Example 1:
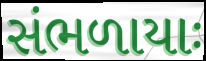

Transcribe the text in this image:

સંભળાયાઃ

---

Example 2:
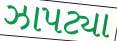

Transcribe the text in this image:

ઝાપટ્યા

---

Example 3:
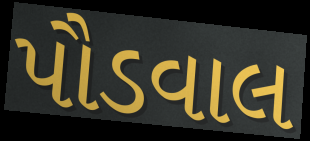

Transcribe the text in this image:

પૌડવાલ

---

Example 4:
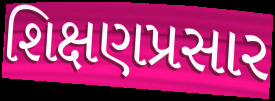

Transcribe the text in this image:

શિક્ષણપ્રસાર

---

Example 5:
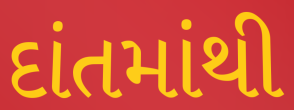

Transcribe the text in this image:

દાંતમાંથી